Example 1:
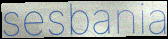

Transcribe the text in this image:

sesbania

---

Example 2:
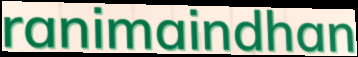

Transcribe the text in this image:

ranimaindhan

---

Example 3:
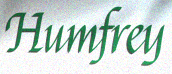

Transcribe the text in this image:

Humfrey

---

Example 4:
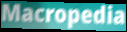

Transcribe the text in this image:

Macropedia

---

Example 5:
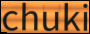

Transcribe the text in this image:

chuki